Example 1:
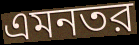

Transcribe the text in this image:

এমনতর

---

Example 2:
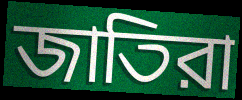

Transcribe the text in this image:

জাতিরা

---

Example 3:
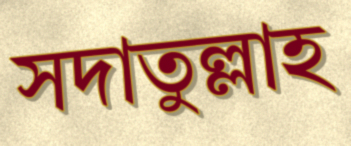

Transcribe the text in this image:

সদাতুল্লাহ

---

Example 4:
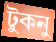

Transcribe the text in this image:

টুকনু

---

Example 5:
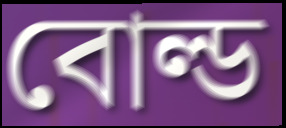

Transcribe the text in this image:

বোল্ড